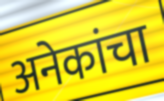
अनेकांचा